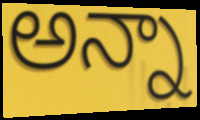
అన్నా